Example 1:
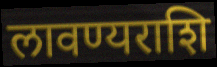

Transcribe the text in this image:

लावण्यराशि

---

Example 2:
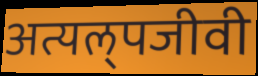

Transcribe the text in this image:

अत्यल्पजीवी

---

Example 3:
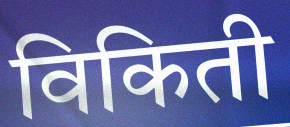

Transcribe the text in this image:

विकिती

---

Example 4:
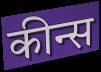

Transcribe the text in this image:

कीन्स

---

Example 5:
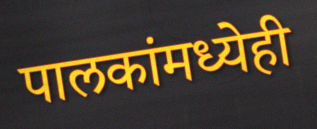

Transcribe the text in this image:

पालकांमध्येही